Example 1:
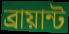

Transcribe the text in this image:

ব্রায়ান্ট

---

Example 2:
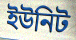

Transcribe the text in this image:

ইউনিট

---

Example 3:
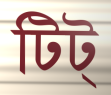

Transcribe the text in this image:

টিট্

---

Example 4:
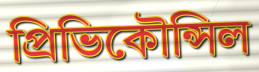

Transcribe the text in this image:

প্রিভিকৌন্সিল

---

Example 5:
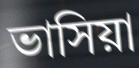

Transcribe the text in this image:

ভাসিয়া